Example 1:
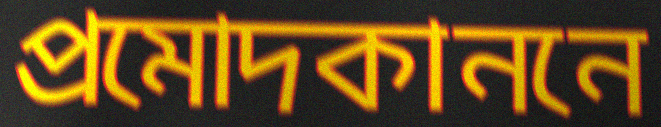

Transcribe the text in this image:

প্রমোদকাননে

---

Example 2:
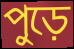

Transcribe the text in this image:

পুড়ে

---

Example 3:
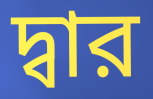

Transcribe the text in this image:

দ্বার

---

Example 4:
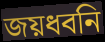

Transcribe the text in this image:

জয়ধবনি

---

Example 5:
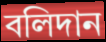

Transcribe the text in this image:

বলিদান